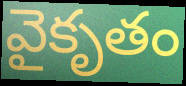
వైకృతం